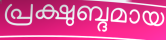
പ്രക്ഷുബ്ദമായ